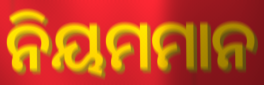
ନିୟମମାନ